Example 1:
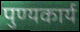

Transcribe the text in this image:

पुण्यकार्य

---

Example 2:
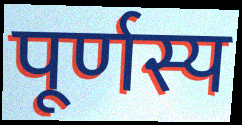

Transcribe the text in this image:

पूर्णस्य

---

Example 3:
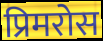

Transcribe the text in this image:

प्रिमरोस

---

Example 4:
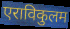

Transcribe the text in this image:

एराविकुलम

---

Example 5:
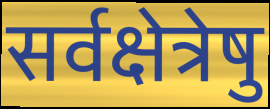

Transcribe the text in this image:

सर्वक्षेत्रेषु